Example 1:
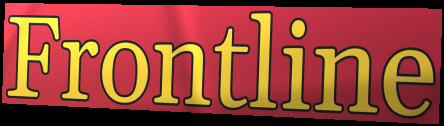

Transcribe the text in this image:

Frontline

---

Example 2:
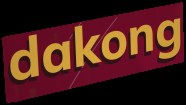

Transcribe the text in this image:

dakong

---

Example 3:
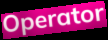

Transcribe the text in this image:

Operator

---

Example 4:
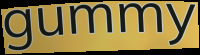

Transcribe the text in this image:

gummy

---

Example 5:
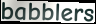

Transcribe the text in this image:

babblers